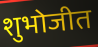
शुभोजीत